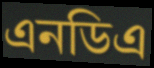
এনডিএ